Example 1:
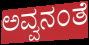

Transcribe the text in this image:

ಅವ್ವನಂತೆ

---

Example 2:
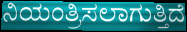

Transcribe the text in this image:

ನಿಯಂತ್ರಿಸಲಾಗುತ್ತಿದೆ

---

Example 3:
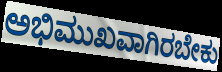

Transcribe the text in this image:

ಅಭಿಮುಖವಾಗಿರಬೇಕು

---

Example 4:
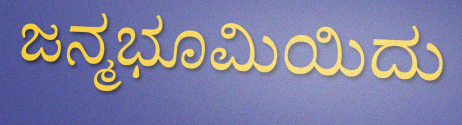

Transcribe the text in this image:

ಜನ್ಮಭೂಮಿಯಿದು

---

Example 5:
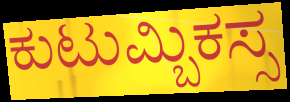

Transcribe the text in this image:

ಕುಟುಮ್ಬಿಕಸ್ಸ